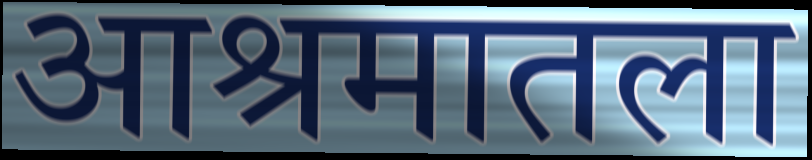
आश्रमातला